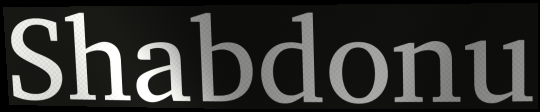
Shabdonu